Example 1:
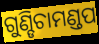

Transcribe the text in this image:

ଗୁଣ୍ଡିଚାମଣ୍ଡପ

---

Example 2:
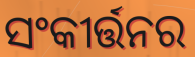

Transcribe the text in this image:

ସଂକୀର୍ତ୍ତନର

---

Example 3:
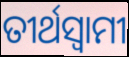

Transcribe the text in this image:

ତୀର୍ଥସ୍ୱାମୀ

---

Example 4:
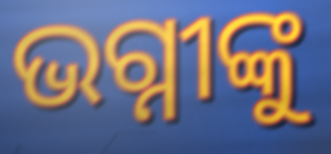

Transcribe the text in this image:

ଭଗ୍ନୀଙ୍କୁ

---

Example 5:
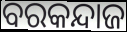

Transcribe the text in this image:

ବରକନ୍ଦାଜ